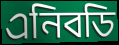
এনিবডি